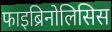
फाइब्रिनोलिसिस